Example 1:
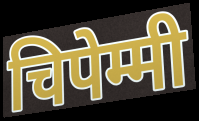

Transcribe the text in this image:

चिपेम्मी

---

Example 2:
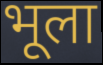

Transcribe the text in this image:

भूला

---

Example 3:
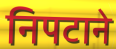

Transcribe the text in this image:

निपटाने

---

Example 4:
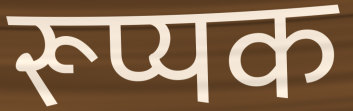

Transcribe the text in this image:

रूप्यक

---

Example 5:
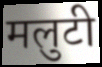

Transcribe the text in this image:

मलुटी